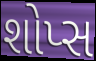
શોપ્સ